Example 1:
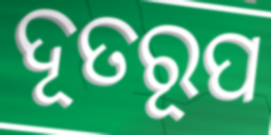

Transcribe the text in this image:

ଦୂତରୂପ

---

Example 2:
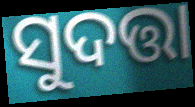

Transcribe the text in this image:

ସୁଦତ୍ତା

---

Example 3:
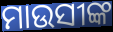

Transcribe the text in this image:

ମାଉସୀଙ୍କ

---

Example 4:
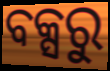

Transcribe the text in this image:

ବକ୍ସରୁ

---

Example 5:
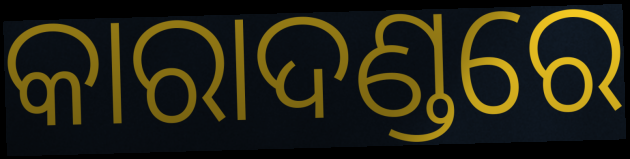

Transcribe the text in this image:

କାରାଦଣ୍ଡରେ